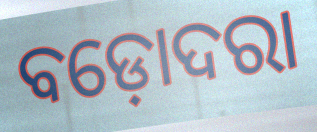
ବଡ଼ୋଦରା